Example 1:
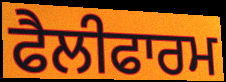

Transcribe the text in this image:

ਫੈਲੀਫਾਰਮ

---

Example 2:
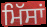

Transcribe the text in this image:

ਮਿੱਸਾਂ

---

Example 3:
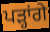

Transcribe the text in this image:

ਪੜ੍ਹਾਂਗੇ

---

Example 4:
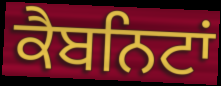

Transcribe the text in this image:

ਕੈਬਨਿਟਾਂ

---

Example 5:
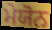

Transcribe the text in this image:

ਮੇਯੋਨ